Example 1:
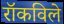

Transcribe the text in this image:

रॉकविले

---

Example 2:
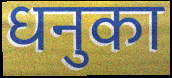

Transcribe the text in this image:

धनुका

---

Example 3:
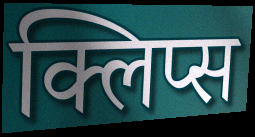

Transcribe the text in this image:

क्लिप्स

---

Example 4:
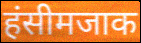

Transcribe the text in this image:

हंसीमजाक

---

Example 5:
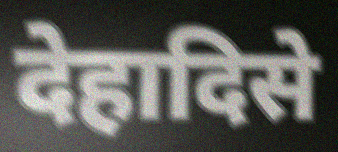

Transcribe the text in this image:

देहादिसे